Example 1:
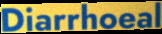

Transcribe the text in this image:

Diarrhoeal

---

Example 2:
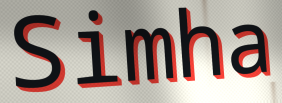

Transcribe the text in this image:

Simha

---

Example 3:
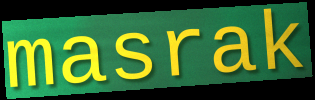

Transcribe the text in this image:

masrak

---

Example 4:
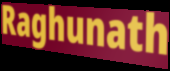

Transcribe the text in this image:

Raghunath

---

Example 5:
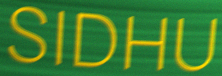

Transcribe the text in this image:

SIDHU